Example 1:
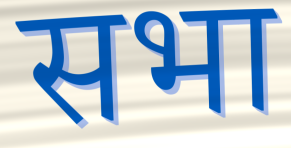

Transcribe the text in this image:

सभा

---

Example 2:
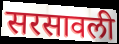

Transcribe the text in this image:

सरसावली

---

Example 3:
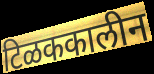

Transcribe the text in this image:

टिळककालीन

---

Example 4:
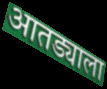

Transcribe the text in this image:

आतड्याला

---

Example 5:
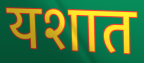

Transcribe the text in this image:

यशात